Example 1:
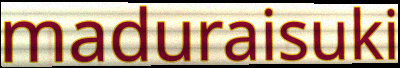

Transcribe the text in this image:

maduraisuki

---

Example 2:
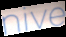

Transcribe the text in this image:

nive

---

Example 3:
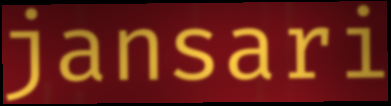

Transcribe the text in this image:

jansari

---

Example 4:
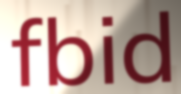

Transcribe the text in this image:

fbid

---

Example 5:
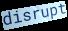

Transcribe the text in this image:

disrupt